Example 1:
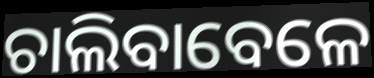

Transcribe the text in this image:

ଚାଲିବାବେଳେ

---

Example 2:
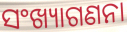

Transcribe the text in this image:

ସଂଖ୍ୟାଗଣନା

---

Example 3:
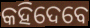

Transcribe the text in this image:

କହିଦେବେ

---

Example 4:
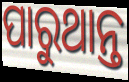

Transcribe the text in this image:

ପାରୁଥାନ୍ତ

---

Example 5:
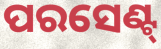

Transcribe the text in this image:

ପରସେଣ୍ଟ୍